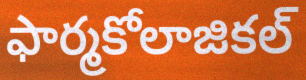
ఫార్మకోలాజికల్